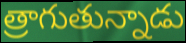
త్రాగుతున్నాడు